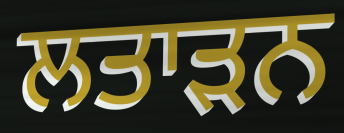
ਲਤਾੜਨ